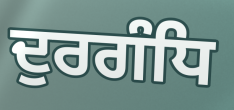
ਦੁਰਗੰਧਿ